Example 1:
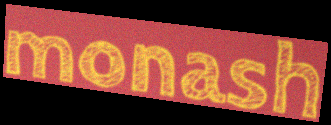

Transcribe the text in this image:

monash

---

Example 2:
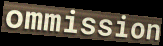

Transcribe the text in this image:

ommission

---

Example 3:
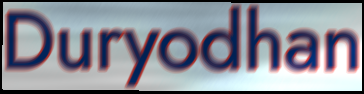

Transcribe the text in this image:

Duryodhan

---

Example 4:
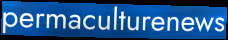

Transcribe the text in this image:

permaculturenews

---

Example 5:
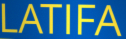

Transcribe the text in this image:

LATIFA